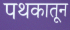
पथकातून